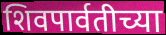
शिवपार्वतीच्या